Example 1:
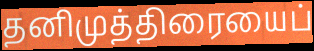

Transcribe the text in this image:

தனிமுத்திரையைப்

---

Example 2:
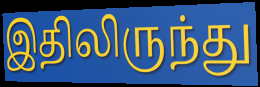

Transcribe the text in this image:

இதிலிருந்து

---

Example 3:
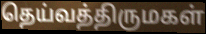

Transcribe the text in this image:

தெய்வத்திருமகள்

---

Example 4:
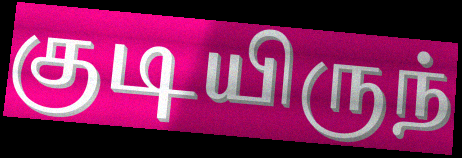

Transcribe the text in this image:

குடியிருந்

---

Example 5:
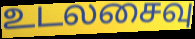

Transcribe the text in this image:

உடலசைவு